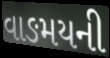
વાઙમયની